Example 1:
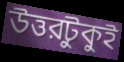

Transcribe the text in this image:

উত্তরটুকুই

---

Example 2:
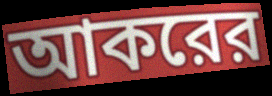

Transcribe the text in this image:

আকরের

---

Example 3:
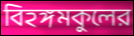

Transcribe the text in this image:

বিহঙ্গমকুলের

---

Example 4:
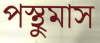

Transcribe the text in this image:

পস্থুমাস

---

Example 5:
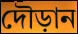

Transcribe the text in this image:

দৌড়ান